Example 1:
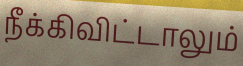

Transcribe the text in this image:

நீக்கிவிட்டாலும்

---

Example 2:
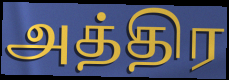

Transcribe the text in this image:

அத்திர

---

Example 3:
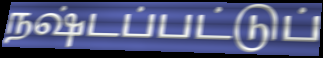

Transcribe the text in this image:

நஷ்டப்பட்டுப்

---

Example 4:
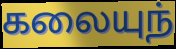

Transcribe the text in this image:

கலையுந்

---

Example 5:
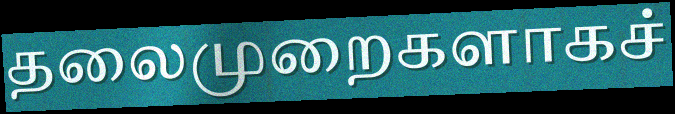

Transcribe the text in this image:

தலைமுறைகளாகச்